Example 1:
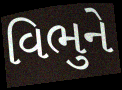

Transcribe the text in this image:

વિભુને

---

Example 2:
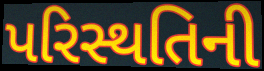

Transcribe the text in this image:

પરિસ્થતિની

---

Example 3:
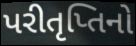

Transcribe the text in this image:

પરીતૃપ્તિનો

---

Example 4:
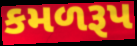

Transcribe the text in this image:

કમળરૂપ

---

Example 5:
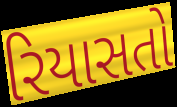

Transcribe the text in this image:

રિયાસતો